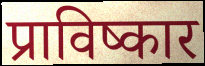
प्राविष्कार